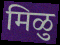
मिळु